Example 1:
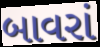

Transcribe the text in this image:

બાવરાં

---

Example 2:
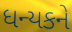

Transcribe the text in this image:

ધન્યકને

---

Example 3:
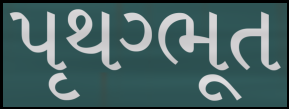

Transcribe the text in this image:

પૃથગ્ભૂત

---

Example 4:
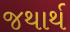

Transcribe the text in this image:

જથાર્થ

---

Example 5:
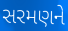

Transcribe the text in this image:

સરમણને